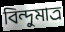
বিন্দুমাত্র